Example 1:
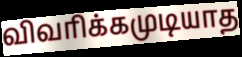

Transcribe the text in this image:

விவரிக்கமுடியாத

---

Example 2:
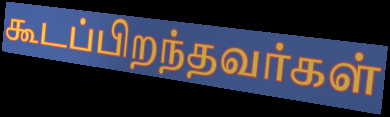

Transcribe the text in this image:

கூடப்பிறந்தவர்கள்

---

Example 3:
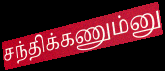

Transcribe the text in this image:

சந்திக்கணும்னு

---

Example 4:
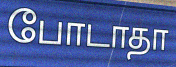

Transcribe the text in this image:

போடாதா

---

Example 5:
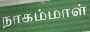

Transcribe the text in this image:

நாகம்மாள்